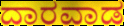
ದಾರವಾಡ